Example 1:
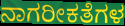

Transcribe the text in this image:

ನಾಗರೀಕತೆಗಳ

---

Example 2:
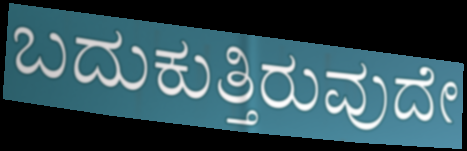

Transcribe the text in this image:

ಬದುಕುತ್ತಿರುವುದೇ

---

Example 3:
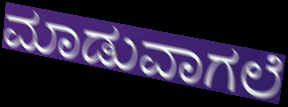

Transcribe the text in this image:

ಮಾಡುವಾಗಲೆ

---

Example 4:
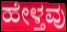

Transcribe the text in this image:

ಹೇಳ್ತವು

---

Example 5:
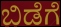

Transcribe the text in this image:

ಬಿಡೆಗೆ